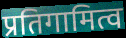
प्रतिगामित्व